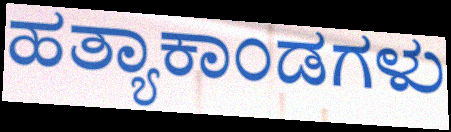
ಹತ್ಯಾಕಾಂಡಗಳು